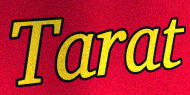
Tarat